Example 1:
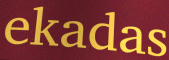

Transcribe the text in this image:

ekadas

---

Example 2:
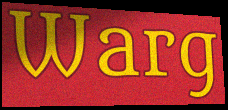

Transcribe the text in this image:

Warg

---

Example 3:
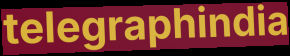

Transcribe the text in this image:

telegraphindia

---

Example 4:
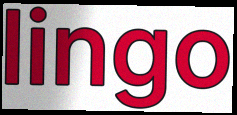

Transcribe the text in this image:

lingo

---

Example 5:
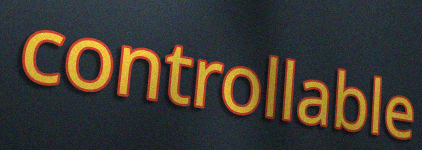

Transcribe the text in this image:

controllable